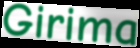
Girima